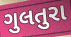
ગુલતુરા